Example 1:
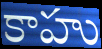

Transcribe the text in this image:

కాహు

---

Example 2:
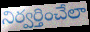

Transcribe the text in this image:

నిర్వర్తించేలా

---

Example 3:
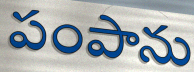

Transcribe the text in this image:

పంపాను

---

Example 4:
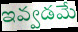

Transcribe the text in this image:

ఇవ్వడమే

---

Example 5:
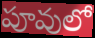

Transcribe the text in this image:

పూవులో